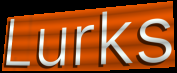
Lurks